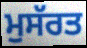
ਮੁਸੱਰਤ